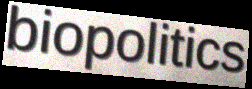
biopolitics